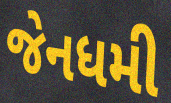
જેનધમી